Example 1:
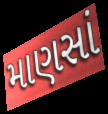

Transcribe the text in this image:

માણસાં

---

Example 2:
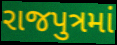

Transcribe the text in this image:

રાજપુત્રમાં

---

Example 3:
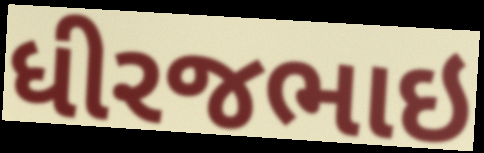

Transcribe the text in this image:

ધીરજભાઇ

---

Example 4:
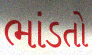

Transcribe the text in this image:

ભાંડતો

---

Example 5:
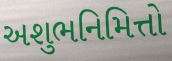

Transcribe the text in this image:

અશુભનિમિત્તો